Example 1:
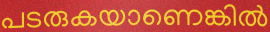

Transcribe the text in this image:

പടരുകയാണെങ്കിൽ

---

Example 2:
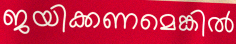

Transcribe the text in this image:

ജയിക്കണമെങ്കിൽ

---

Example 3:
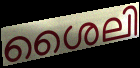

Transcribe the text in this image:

ശൈലി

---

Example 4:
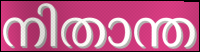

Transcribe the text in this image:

നിതാന്ത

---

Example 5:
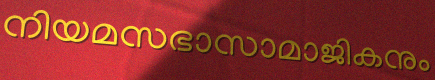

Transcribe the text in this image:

നിയമസഭാസാമാജികനും